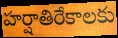
హర్షాతిరేకాలకు